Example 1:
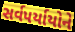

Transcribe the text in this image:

સર્વપર્યાયોને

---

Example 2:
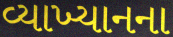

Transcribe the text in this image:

વ્યાખ્યાનના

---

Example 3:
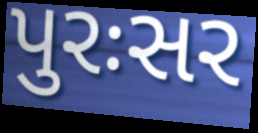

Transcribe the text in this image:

પુરઃસર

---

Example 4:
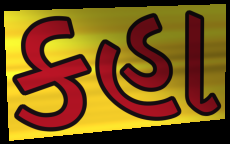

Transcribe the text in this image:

કહા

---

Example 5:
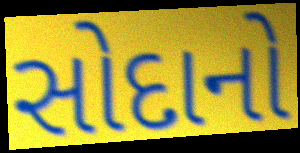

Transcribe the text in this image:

સોદાનો